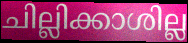
ചില്ലിക്കാശില്ല